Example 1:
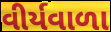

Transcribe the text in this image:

વીર્યવાળા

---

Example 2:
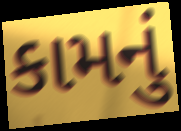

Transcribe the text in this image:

કામનું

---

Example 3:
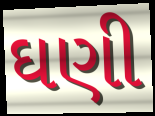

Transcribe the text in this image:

ઘણી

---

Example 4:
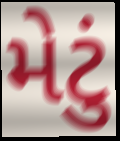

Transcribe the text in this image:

મેટું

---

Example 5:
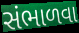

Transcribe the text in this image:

સંભાળવા